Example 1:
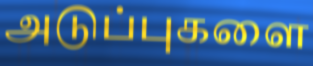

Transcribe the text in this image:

அடுப்புகளை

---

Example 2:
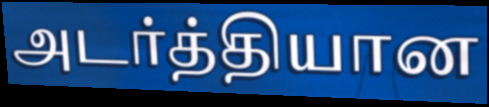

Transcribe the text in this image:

அடர்த்தியான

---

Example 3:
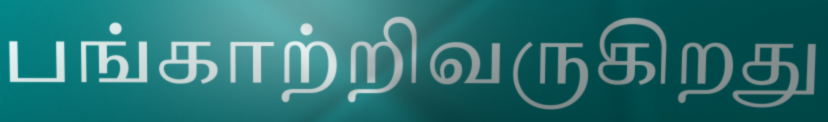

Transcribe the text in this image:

பங்காற்றிவருகிறது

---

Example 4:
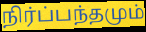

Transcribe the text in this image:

நிர்ப்பந்தமும்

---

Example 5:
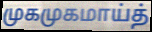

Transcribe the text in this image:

முகமுகமாய்த்